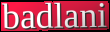
badlani